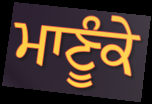
ਮਾਣੂੰਕੇ